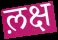
ल़क्ष